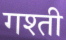
गश्‍ती